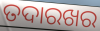
ତଦାରଖର